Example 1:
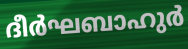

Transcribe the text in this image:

ദീർഘബാഹുർ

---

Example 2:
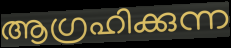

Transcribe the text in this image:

ആഗ്രഹിക്കുന്ന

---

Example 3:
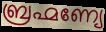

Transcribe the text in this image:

ബ്രഹ്മണ്യേ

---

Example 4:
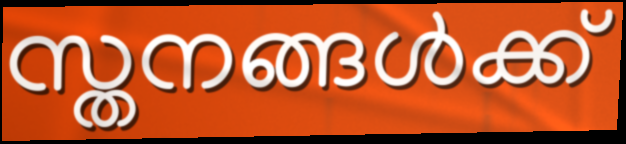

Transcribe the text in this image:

സ്തനങ്ങൾക്ക്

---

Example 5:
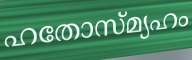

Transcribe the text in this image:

ഹതോസ്മ്യഹം